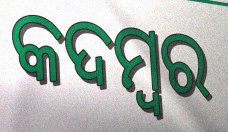
କଦମ୍ବର